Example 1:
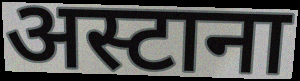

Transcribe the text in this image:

अस्टाना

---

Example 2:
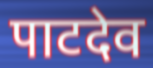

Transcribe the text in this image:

पाटदेव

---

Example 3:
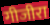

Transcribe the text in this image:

गीजीरा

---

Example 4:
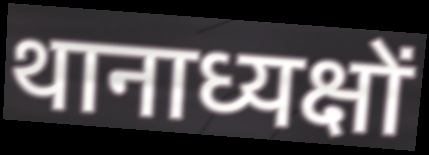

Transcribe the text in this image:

थानाध्यक्षों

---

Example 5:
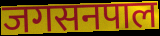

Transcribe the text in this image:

जगसनपाल